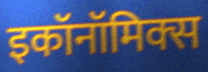
इकॉनॉमिक्‍स